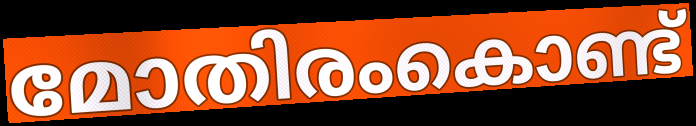
മോതിരംകൊണ്ട്